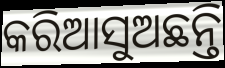
କରିଆସୁଅଛନ୍ତି